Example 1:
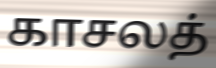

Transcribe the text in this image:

காசலத்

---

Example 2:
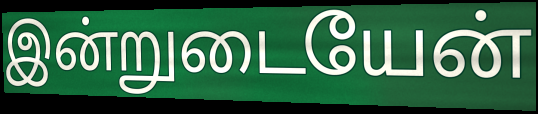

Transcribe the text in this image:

இன்றுடையேன்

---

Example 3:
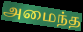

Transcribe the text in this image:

அமைந்த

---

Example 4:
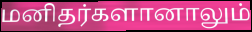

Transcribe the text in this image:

மனிதர்களானாலும்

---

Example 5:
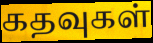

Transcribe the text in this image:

கதவுகள்